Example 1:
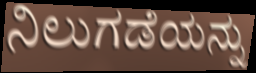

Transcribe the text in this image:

ನಿಲುಗಡೆಯನ್ನು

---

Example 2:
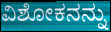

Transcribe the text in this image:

ವಿಶೋಕನನ್ನು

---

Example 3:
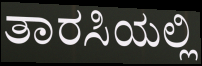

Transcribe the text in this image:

ತಾರಸಿಯಲ್ಲಿ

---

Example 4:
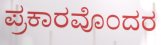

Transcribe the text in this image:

ಪ್ರಕಾರವೊಂದರ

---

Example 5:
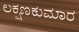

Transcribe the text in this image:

ಲಕ್ಷಣಕುಮಾರ